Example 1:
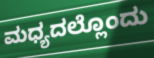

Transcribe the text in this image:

ಮಧ್ಯದಲ್ಲೊಂದು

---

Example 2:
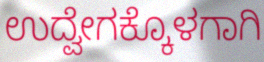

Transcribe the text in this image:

ಉದ್ವೇಗಕ್ಕೊಳಗಾಗಿ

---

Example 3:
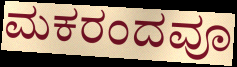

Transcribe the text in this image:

ಮಕರಂದವೂ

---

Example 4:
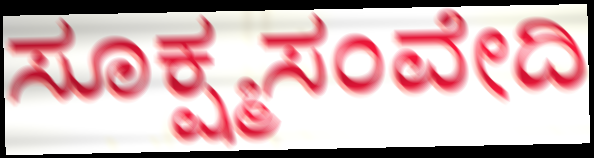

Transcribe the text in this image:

ಸೂಕ್ಷ್ಮಸಂವೇದಿ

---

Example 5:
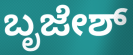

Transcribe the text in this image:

ಬೃಜೇಶ್